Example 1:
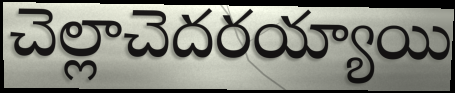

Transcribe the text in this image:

చెల్లాచెదరయ్యాయి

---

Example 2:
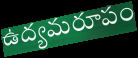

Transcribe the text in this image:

ఉద్యమరూపం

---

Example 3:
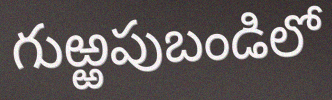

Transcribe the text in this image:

గుఱ్ఱపుబండిలో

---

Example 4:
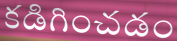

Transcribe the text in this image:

కడిగించడం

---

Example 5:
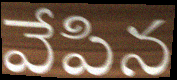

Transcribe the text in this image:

వేపిన